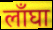
लाँघा